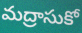
మద్రాసుకో